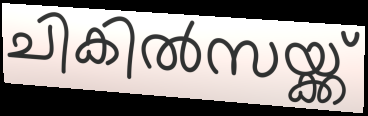
ചികിൽസയ്ക്ക്